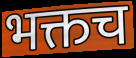
भक्तच